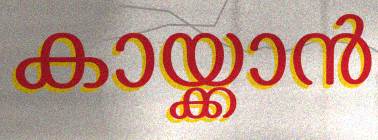
കായ്ക്കാൻ